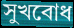
সুখবোধ